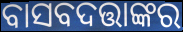
ବାସବଦତ୍ତାଙ୍କର